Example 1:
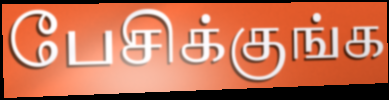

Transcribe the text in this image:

பேசிக்குங்க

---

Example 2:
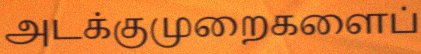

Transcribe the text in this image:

அடக்குமுறைகளைப்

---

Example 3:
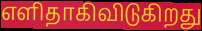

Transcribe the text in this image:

எளிதாகிவிடுகிறது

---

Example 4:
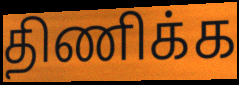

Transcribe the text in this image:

திணிக்க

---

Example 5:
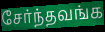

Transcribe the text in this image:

சேர்ந்தவங்க